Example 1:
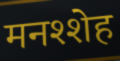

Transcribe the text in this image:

मनश्शेह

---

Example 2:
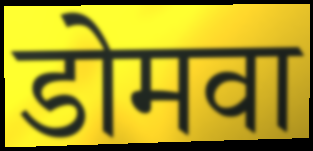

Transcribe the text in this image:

डोमवा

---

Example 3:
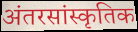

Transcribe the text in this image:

अंतरसांस्कृतिक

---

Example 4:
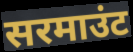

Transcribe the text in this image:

सरमाउंट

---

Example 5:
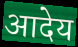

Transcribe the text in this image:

आदेय